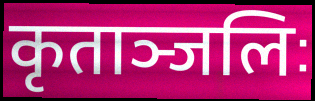
कृताञ्जलिः